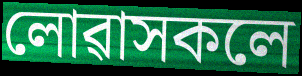
লোৱাসকলে